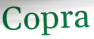
Copra